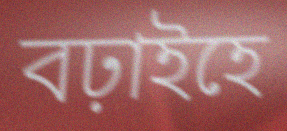
বঢ়াইহে